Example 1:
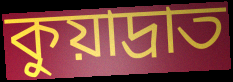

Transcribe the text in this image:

কুয়াদ্রাত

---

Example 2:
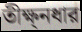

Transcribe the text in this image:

তীক্ষ্নধার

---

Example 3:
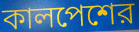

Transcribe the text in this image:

কালপেশের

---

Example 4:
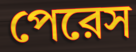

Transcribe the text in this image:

পেরেস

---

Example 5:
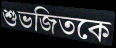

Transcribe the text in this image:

শুভজিতকে